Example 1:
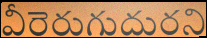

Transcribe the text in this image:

వీరెరుగుదురని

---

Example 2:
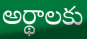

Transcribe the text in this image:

అర్థాలకు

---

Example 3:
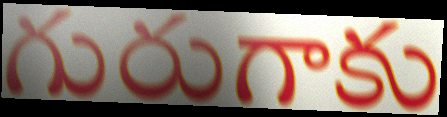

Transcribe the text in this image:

గురుగాకు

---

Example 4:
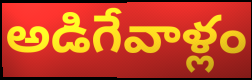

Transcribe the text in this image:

అడిగేవాళ్లం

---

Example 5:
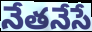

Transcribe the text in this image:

నేతనేసే